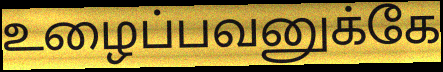
உழைப்பவனுக்கே